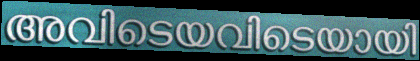
അവിടെയവിടെയായി